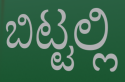
ಬಿಟ್ಟಲ್ಲಿ